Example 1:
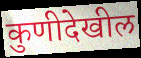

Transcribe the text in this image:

कुणीदेखील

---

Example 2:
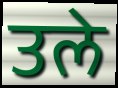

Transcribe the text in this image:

उले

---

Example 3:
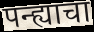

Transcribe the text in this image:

पन्ह्याचा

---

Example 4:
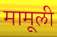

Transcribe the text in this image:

मामूली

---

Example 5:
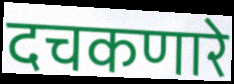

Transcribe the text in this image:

दचकणारे